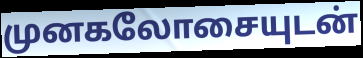
முனகலோசையுடன்